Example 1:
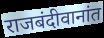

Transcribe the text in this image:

राजबंदीवानांत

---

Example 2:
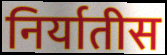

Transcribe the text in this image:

निर्यातीस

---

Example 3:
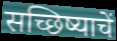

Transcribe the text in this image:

सच्छिष्याचें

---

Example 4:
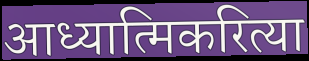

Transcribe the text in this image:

आध्यात्मिकरित्या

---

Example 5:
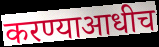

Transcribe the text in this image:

करण्याआधीच